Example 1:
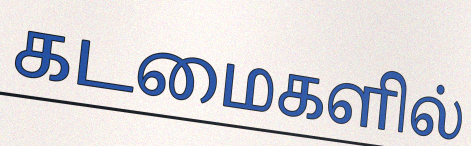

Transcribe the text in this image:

கடமைகளில்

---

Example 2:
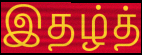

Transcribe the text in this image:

இதழ்த்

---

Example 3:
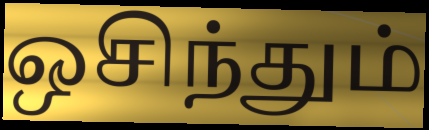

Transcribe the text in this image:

ஒசிந்தும்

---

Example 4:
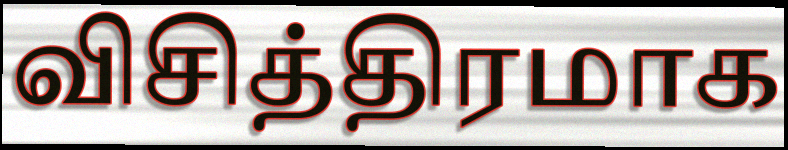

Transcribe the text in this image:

விசித்திரமாக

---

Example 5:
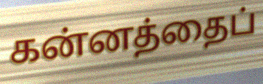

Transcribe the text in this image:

கன்னத்தைப்